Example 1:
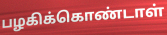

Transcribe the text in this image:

பழகிக்கொண்டாள்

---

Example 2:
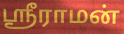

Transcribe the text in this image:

ஸ்ரீராமன்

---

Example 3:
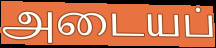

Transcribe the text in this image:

அடையப்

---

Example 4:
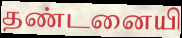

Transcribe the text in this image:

தண்டனையி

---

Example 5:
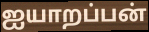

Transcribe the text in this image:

ஐயாறப்பன்